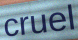
cruel